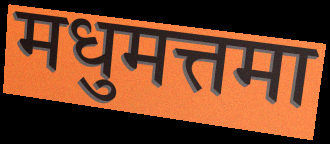
मधुमत्तमा